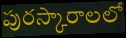
పురస్కారాలలో